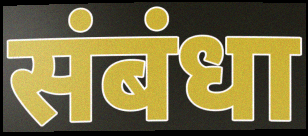
संबंधा